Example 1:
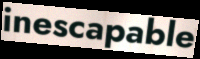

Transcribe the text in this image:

inescapable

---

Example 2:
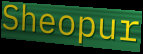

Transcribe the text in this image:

Sheopur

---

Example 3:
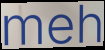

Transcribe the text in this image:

meh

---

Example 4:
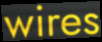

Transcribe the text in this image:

wires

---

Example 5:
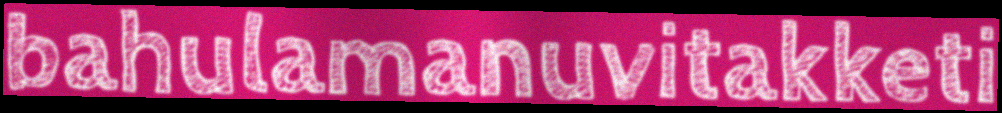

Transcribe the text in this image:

bahulamanuvitakketi